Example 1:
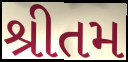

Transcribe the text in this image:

શ્રીતમ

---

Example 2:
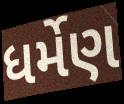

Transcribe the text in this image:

ધર્મેણ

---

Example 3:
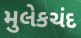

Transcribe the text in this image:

મુલેકચંદ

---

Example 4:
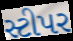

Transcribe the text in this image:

સ્ટીપર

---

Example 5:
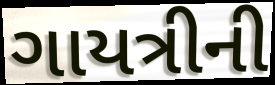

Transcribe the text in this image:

ગાયત્રીની